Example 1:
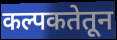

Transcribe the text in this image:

कल्पकतेतून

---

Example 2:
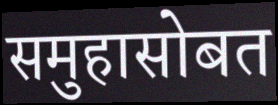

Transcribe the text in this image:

समुहासोबत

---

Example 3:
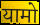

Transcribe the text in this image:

यामो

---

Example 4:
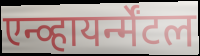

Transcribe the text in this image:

एन्व्हायर्न्मेंटल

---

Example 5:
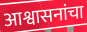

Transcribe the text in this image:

आश्वासनांचा